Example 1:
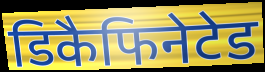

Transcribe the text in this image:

डिकैफिनेटेड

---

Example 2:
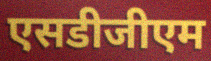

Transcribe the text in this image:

एसडीजीएम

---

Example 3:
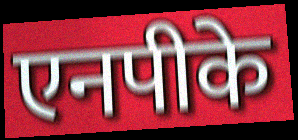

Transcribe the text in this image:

एनपीके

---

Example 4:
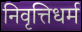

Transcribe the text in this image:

निवृत्तिधर्म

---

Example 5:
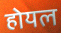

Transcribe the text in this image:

होयल